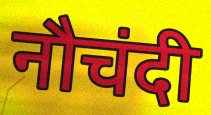
नौचंदी